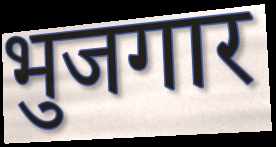
भुजगार